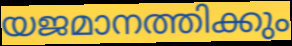
യജമാനത്തിക്കും